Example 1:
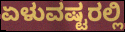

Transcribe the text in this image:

ಏಳುವಷ್ಟರಲ್ಲಿ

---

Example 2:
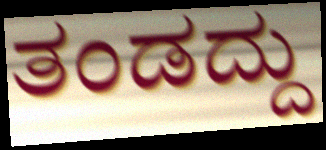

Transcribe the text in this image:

ತಂಡದ್ದು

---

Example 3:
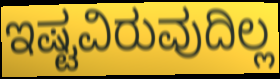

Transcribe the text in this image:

ಇಷ್ಟವಿರುವುದಿಲ್ಲ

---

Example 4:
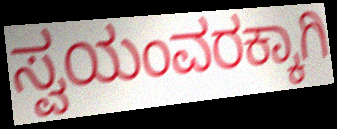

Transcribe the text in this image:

ಸ್ವಯಂವರಕ್ಕಾಗಿ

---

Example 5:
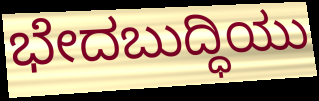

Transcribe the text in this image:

ಭೇದಬುದ್ಧಿಯು